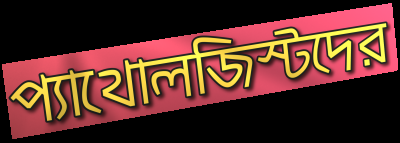
প্যাথোলজিস্টদের